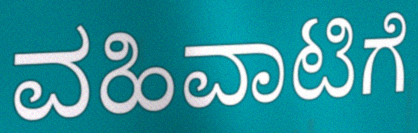
ವಹಿವಾಟಿಗೆ